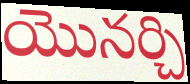
యొనర్చి